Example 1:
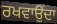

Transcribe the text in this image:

ਰਖਵਾਉਂਦਾ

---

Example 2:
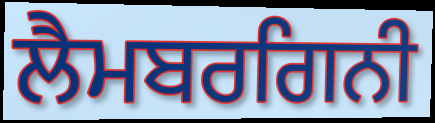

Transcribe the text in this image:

ਲੈਮਬਰਗਿਨੀ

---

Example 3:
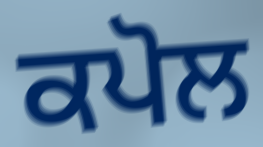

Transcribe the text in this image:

ਕਪੋਲ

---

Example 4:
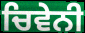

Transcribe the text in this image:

ਚਿਵੇਨੀ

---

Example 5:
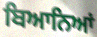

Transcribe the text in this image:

ਬਿਆਨਿਆਂ